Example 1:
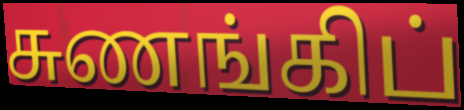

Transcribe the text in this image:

சுணங்கிப்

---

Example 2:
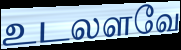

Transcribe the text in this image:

உடலளவே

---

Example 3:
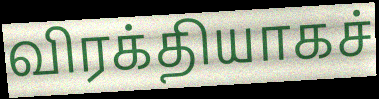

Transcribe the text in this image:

விரக்தியாகச்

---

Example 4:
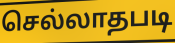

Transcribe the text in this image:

செல்லாதபடி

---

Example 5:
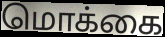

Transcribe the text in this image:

மொக்கை